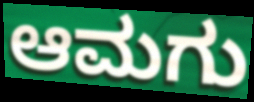
ಆಮಗು